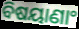
ବିଷୟାଣାଂ